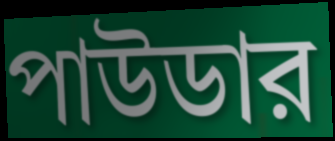
পাউডার